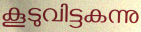
കൂടുവിട്ടകന്നു